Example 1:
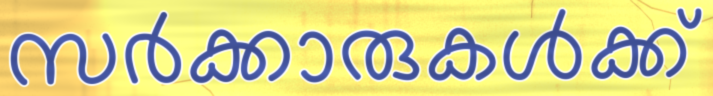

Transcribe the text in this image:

സർക്കാരുകൾക്ക്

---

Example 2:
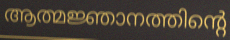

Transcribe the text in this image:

ആത്മജ്ഞാനത്തിന്റെ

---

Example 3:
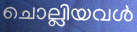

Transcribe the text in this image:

ചൊല്ലിയവൾ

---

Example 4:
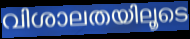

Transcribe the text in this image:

വിശാലതയിലൂടെ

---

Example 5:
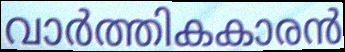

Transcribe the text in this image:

വാർത്തികകാരൻ